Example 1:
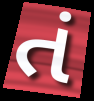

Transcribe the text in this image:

તં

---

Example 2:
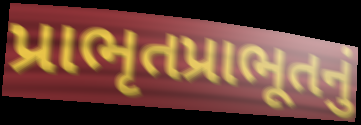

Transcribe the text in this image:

પ્રાભૃતપ્રાભૂતનું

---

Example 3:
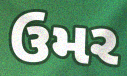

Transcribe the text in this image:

ઉમર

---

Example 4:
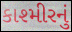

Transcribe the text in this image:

કાશ્મીરનું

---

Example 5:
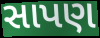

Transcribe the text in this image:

સાપણ